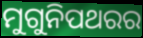
ମୁଗୁନିପଥରର